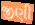
જીણી